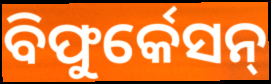
ବିଫୁର୍କେସନ୍